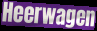
Heerwagen